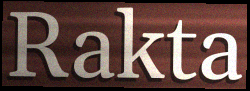
Rakta